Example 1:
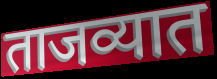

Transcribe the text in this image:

ताजव्यात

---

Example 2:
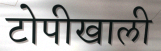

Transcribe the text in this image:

टोपीखाली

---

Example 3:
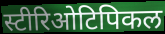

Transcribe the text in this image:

स्टीरिओटिपिकल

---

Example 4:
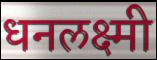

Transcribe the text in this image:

धनलक्ष्मी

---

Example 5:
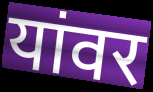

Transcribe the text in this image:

यांवर